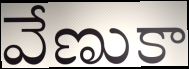
వేణుకా